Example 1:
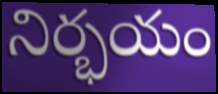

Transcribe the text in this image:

నిర్భయం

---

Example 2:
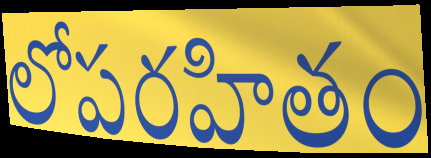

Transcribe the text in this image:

లోపరహితం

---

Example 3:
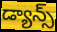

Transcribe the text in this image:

డ్యాన్స్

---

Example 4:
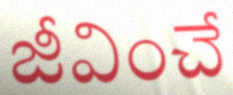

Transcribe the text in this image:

జీవించే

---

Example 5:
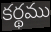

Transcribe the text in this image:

కర్థము